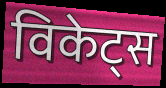
विकेट्स